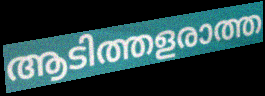
ആടിത്തളരാത്ത